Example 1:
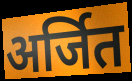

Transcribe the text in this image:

अर्जित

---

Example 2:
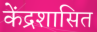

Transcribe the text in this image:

केंद्रशासित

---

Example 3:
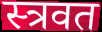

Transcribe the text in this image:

स्त्रवत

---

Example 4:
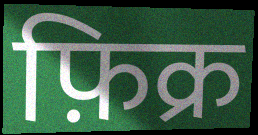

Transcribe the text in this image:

फ़िक्र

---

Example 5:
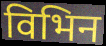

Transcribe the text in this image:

विभिन